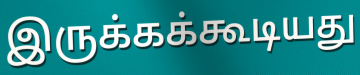
இருக்கக்கூடியது